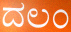
ದಲಂ